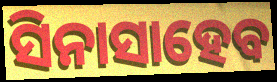
ସିନାସାହେବ